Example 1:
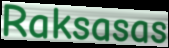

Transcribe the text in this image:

Raksasas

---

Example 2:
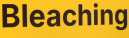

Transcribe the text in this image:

Bleaching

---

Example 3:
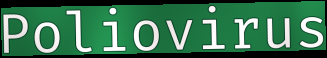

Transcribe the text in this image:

Poliovirus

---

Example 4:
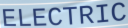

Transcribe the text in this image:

ELECTRIC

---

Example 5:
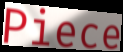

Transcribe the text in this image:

Piece